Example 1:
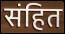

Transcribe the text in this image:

संहित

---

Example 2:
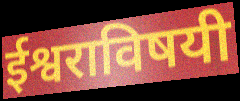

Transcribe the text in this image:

ईश्वराविषयी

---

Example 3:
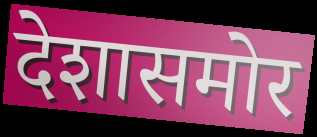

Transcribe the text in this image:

देशासमोर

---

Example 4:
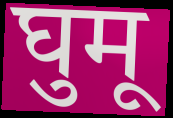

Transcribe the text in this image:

घुमू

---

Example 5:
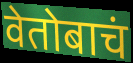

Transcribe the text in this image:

वेतोबाचं